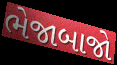
ભેજાબાજો